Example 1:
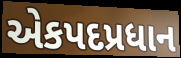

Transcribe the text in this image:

એકપદપ્રધાન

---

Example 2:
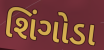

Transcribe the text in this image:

શિંગોડા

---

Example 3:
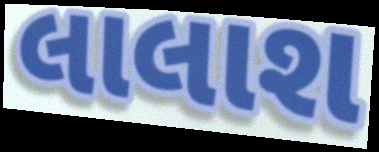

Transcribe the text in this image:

લાલાશ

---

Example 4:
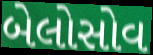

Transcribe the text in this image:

બેલોસોવ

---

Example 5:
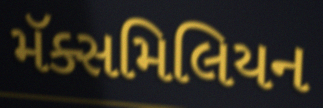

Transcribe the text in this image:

મૅક્સમિલિયન